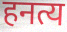
हनत्य